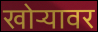
खोऱ्यावर